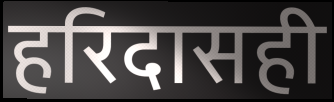
हरिदासही